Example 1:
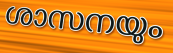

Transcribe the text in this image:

ശാസനയും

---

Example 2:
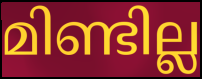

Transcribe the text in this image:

മിണ്ടില്ല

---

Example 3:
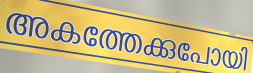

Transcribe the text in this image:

അകത്തേക്കുപോയി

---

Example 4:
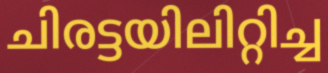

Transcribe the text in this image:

ചിരട്ടയിലിറ്റിച്ച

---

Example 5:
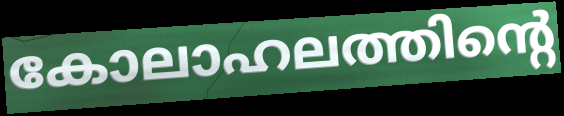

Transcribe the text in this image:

കോലാഹലത്തിന്റെ